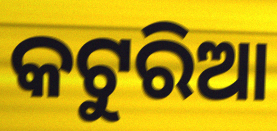
କଟୁରିଆ